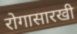
रोगासारखी